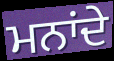
ਮਨਾਂਦੇ